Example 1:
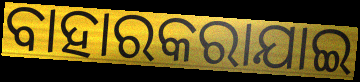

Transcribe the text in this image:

ବାହାରକରାଯାଇ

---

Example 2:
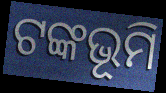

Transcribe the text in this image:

ଟଙ୍କଭୂମି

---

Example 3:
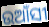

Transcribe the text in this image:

ଉଆଁସୀ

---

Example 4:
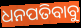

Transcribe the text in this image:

ଧନପତିବାବୁ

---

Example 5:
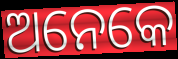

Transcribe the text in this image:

ଅନେକେ